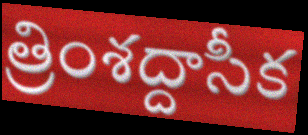
త్రింశద్దాసీక